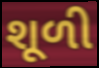
શૂળી